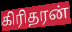
கிரிதரன்